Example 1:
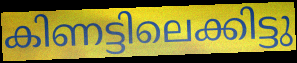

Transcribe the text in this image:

കിണട്ടിലെക്കിട്ടു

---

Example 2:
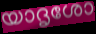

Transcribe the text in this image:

യാദൃശോ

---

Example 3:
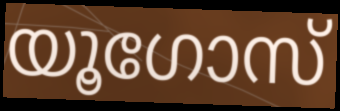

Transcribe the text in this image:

യൂഗോസ്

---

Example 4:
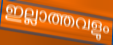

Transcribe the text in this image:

ഇല്ലാത്തവളും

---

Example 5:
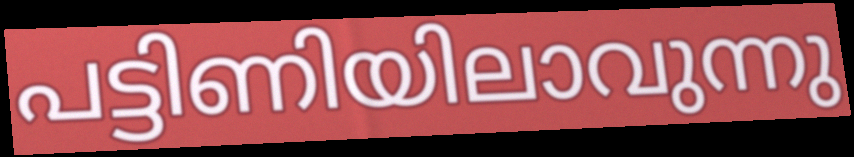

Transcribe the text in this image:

പട്ടിണിയിലാവുന്നു